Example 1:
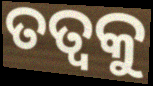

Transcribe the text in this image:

ତତ୍ୱକୁ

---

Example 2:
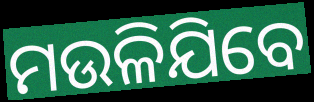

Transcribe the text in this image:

ମଉଳିଯିବେ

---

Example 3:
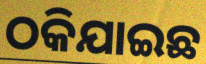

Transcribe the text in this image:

ଠକିଯାଇଛ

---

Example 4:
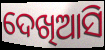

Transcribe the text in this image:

ଦେଖିଆସି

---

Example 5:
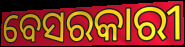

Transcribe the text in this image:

ବେସରକାରୀ